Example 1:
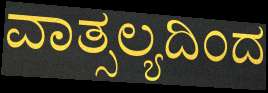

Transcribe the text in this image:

ವಾತ್ಸಲ್ಯದಿಂದ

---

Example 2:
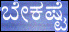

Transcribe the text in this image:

ಬೇಕಷ್ಟೆ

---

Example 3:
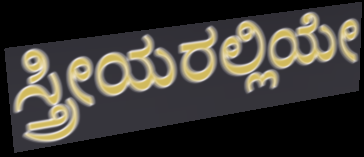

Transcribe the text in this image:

ಸ್ತ್ರೀಯರಲ್ಲಿಯೇ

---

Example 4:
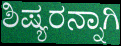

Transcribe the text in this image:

ಶಿಷ್ಯರನ್ನಾಗಿ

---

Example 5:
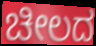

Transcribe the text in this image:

ಚೀಲದ